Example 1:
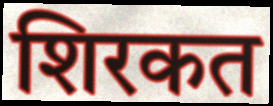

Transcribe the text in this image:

शिरकत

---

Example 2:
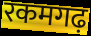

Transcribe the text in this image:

रकमगढ़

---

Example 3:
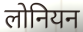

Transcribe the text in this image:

लोनियन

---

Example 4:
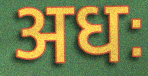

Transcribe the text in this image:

अधः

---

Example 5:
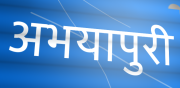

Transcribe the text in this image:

अभयापुरी